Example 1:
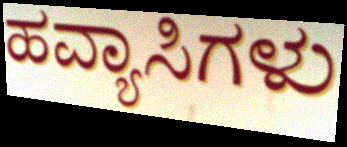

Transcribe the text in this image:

ಹವ್ಯಾಸಿಗಳು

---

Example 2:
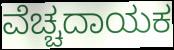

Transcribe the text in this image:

ವೆಚ್ಚದಾಯಕ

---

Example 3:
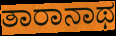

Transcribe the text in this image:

ತಾರಾನಾಥ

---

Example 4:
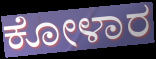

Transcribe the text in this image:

ಕೋಳಾರ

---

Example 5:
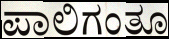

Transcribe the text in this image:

ಪಾಲಿಗಂತೂ